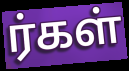
ர்கள்